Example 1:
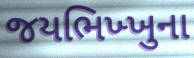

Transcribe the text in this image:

જયભિખ્ખુના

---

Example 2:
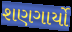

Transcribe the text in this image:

શણગાર્યો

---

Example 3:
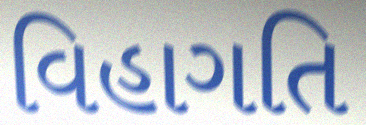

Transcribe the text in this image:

વિહાગતિ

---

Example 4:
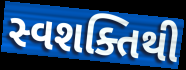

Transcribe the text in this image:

સ્વશક્તિથી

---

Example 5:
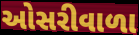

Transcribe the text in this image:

ઓસરીવાળા